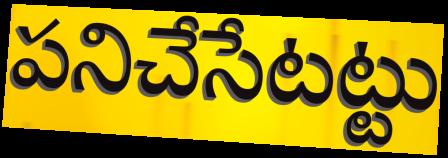
పనిచేసేటట్టు